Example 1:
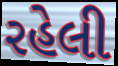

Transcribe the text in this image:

રહેલી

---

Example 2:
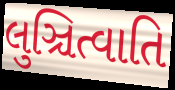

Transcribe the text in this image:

લુઞ્ચિત્વાતિ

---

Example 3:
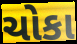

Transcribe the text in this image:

ચોકા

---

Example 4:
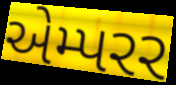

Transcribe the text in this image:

એમ્પરર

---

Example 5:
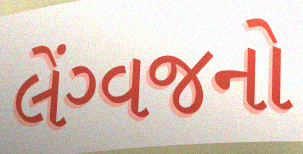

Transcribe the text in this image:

લેંગ્વજનો